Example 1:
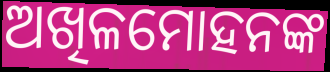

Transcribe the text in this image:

ଅଖିଳମୋହନଙ୍କ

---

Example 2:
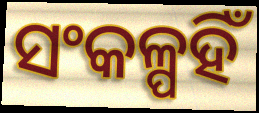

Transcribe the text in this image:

ସଂକଳ୍ପହିଁ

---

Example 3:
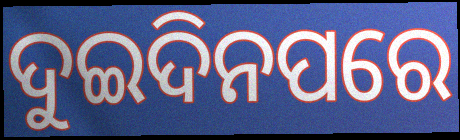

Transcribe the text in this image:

ଦୁଇଦିନପରେ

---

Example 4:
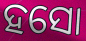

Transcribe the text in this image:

ହସୋ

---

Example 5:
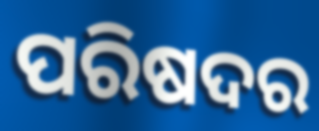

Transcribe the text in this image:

ପରିଷଦର